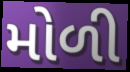
મોળી